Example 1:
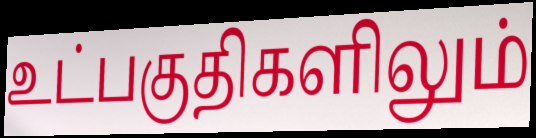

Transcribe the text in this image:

உட்பகுதிகளிலும்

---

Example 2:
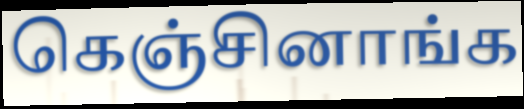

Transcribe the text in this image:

கெஞ்சினாங்க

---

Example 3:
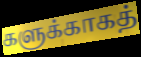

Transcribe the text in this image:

களுக்காகத்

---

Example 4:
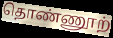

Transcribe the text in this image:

தொண்ணூற்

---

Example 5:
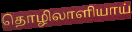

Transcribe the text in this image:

தொழிலாளியாய்